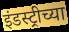
इंडस्ट्रीच्या